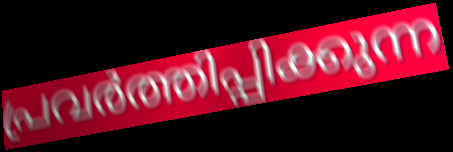
പ്രവർത്തിപ്പിക്കുന്ന